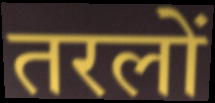
तरलों